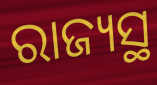
ରାଜ୍ୟସ୍ଥ